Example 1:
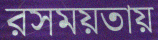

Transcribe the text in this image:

রসময়তায়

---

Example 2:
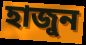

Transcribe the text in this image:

হাজুন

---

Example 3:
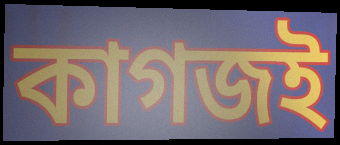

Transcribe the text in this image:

কাগজই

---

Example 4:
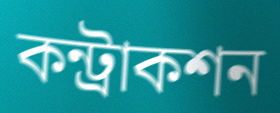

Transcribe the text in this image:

কন্ট্রাকশন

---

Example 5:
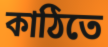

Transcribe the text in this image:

কাঠিতে